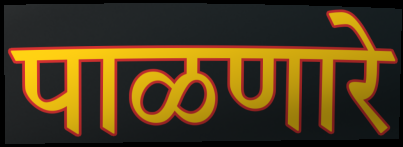
पाळणारे